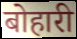
बोहारी